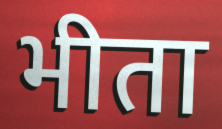
भीता